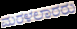
ಮರಳಲಾರರು